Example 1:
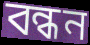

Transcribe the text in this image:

বন্ধন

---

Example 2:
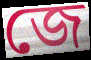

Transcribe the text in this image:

জে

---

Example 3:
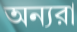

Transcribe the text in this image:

অন্যরা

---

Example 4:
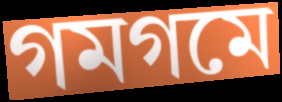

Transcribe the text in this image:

গমগমে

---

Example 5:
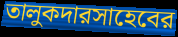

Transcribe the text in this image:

তালুকদারসাহেবের